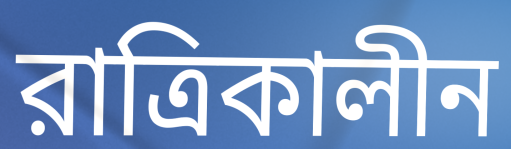
রাত্রিকালীন